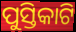
ପୁସ୍ତିକାଟି